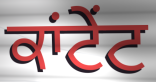
ਕਾਂਟੇਂਟ